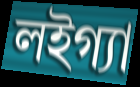
লইগ্যা